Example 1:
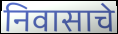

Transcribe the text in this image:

निवासाचे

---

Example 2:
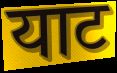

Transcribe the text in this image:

याट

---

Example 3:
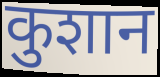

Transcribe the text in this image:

कुशान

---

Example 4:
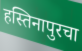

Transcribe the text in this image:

हस्तिनापुरचा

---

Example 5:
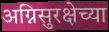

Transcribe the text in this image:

अग्निसुरक्षेच्या